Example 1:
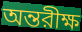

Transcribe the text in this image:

অন্তরীক্ষ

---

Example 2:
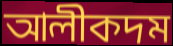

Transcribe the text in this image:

আলীকদম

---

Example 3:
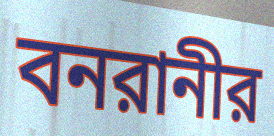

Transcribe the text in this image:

বনরানীর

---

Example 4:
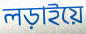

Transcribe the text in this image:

লড়াইয়ে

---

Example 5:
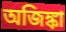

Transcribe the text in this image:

অজিঙ্কা